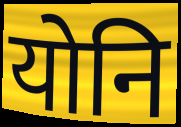
योनि